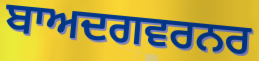
ਬਾਅਦਗਵਰਨਰ